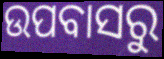
ଉପବାସରୁ